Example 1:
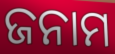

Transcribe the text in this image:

ଜନାମ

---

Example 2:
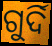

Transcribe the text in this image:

ଗୁର୍ଦି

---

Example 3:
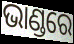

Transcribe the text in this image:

ଭାଣ୍ଡରେ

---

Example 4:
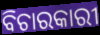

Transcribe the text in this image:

ବିଚାରକାରୀ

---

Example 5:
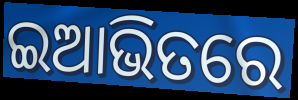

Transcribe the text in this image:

ଇଆଭିତରେ